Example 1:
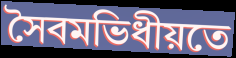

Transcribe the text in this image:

সৈবমভিধীয়তে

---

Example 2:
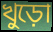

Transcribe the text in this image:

খুড়ো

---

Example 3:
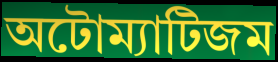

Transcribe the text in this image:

অটোম্যাটিজম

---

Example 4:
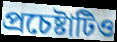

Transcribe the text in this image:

প্রচেষ্টাটিও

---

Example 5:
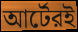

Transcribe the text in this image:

আর্টেরই